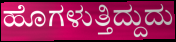
ಹೊಗಳುತ್ತಿದ್ದುದು